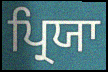
ਪ੍ਰਿਯਾ